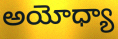
అయోధ్యా